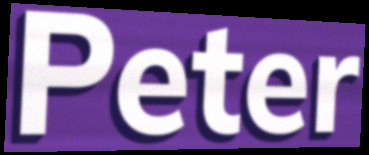
Peter